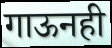
गाऊनही